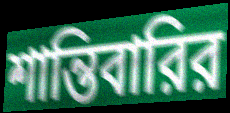
শান্তিবারির